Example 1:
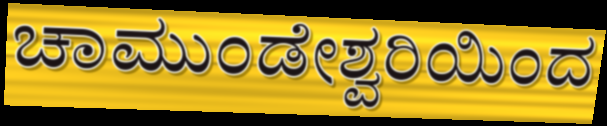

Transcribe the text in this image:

ಚಾಮುಂಡೇಶ್ವರಿಯಿಂದ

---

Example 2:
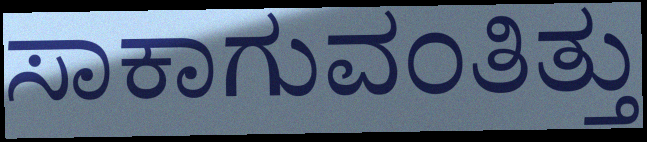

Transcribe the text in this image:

ಸಾಕಾಗುವಂತಿತ್ತು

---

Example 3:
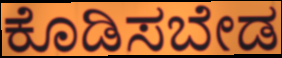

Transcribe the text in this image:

ಕೊಡಿಸಬೇಡ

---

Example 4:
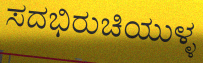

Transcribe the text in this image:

ಸದಭಿರುಚಿಯುಳ್ಳ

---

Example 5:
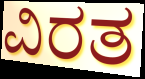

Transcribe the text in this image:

ವಿರತ